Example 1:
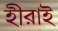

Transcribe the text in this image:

হীরাই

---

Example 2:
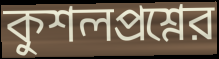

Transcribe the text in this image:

কুশলপ্রশ্নের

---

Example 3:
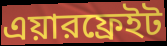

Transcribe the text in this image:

এয়ারফ্রেইট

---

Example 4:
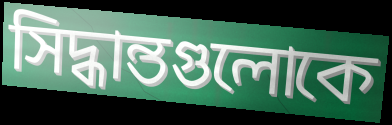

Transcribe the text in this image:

সিদ্ধান্তগুলোকে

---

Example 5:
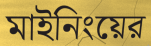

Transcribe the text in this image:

মাইনিংয়ের